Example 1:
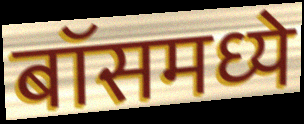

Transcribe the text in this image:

बॉसमध्ये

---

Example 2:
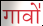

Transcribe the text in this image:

गावो॑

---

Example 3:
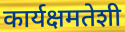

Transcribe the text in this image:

कार्यक्षमतेशी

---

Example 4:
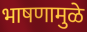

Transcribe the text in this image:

भाषणामुळे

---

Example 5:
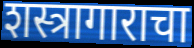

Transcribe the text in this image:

शस्त्रागाराचा